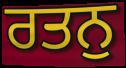
ਰਤਨੁ